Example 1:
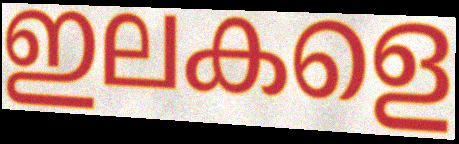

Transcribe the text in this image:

ഇലകളെ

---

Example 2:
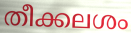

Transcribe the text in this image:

തീക്കലശം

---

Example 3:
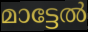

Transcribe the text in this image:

മാട്ടേൽ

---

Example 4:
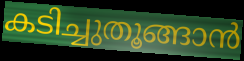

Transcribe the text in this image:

കടിച്ചുതൂങ്ങാൻ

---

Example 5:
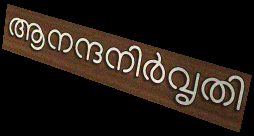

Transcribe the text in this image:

ആനന്ദനിർവൃതി